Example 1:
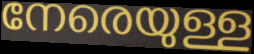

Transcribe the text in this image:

നേരെയുള്ള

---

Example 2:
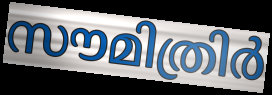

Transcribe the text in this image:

സൗമിത്രിർ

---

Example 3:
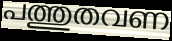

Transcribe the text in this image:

പത്തുതവണ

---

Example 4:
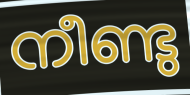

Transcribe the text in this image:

നീണ്ടു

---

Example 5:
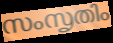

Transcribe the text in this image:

സംസൃതിം